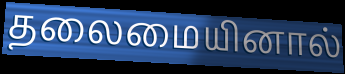
தலைமையினால்